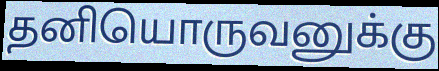
தனியொருவனுக்கு